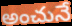
అంచునే